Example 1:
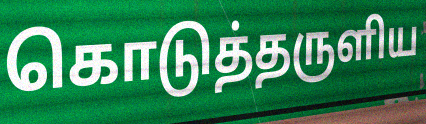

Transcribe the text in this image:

கொடுத்தருளிய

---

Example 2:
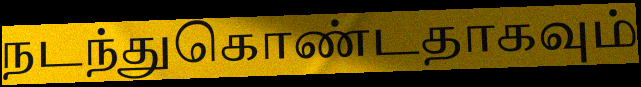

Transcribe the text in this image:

நடந்துகொண்டதாகவும்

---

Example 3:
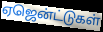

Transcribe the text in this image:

ஏஜென்ட்டுகள்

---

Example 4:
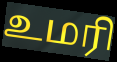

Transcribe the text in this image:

உமரி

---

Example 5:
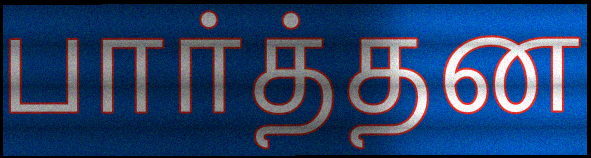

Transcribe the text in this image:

பார்த்தன